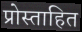
प्रोस्ताहित